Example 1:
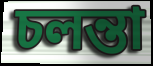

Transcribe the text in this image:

চলন্তা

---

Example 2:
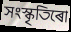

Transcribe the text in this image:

সংস্কৃতিৰো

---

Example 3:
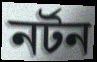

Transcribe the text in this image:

নৰ্টন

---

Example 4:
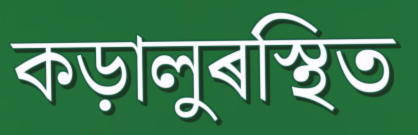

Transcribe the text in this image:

কড়ালুৰস্থিত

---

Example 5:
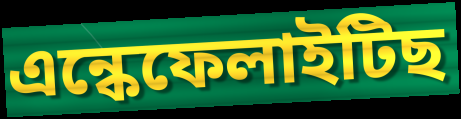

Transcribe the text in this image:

এন্কেফেলাইটিছ